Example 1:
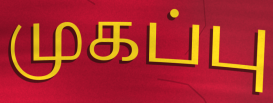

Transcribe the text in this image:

முகப்பு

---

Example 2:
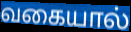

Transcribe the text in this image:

வகையால்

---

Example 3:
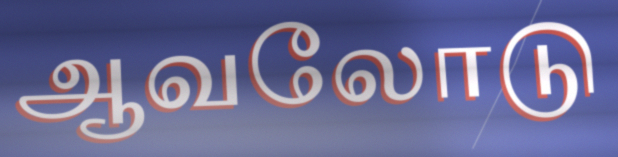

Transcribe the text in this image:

ஆவலோடு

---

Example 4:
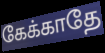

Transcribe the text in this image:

கேக்காதே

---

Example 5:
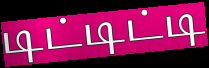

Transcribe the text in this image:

டிட்டிட்டி